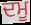
ਦਮੂ